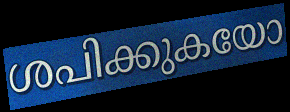
ശപിക്കുകയോ